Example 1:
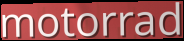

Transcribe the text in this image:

motorrad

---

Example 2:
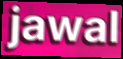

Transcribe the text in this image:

jawal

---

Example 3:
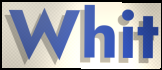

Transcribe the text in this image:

Whit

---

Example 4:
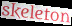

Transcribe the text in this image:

skeleton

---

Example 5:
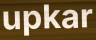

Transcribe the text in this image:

upkar